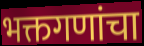
भक्तगणांचा